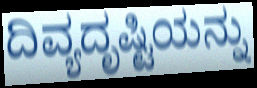
ದಿವ್ಯದೃಷ್ಟಿಯನ್ನು